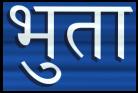
भुता